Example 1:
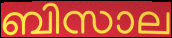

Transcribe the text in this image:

ബിസാല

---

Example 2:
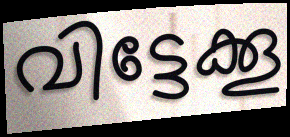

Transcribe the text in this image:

വിട്ടേക്കൂ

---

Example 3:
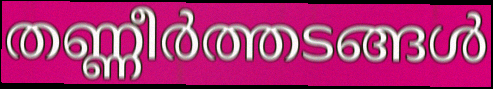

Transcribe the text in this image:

തണ്ണീർത്തടങ്ങൾ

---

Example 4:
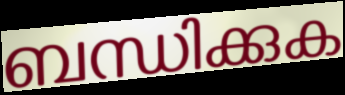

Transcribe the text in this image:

ബന്ധിക്കുക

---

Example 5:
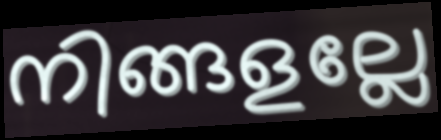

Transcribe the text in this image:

നിങ്ങളല്ലേ